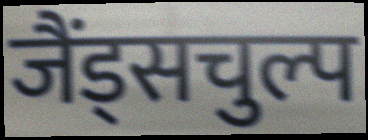
जैंड्सचुल्प